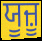
ਯੂਜ਼ੂ